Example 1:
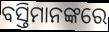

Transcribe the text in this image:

ବସ୍ତିମାନଙ୍କରେ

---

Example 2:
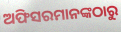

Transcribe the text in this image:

ଅଫିସରମାନଙ୍କଠାରୁ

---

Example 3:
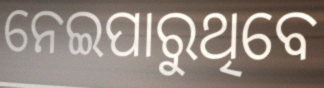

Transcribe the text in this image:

ନେଇପାରୁଥିବେ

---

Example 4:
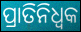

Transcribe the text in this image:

ପ୍ରାତିନିଧ୍ଵକ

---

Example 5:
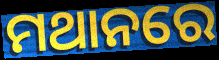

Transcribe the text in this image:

ମଥାନରେ